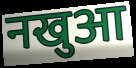
नखुआ